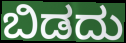
ಬಿಡದು